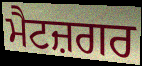
ਮੈਟਜ਼ਗਰ